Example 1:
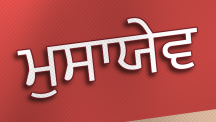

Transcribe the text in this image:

ਮੁਸਾਯੇਵ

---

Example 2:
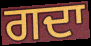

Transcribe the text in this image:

ਗਦਾ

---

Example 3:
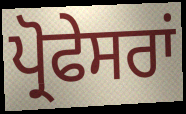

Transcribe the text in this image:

ਪ੍ਰੋਫੇਸਰਾਂ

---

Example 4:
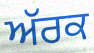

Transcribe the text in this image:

ਅੱਰਕ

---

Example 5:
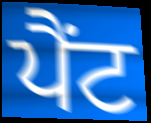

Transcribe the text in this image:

ਪੈਂਟ